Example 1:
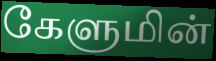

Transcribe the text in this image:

கேளுமின்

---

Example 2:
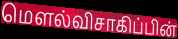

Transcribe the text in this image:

மௌல்விசாகிப்பின்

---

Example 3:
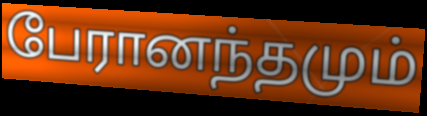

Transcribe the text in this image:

பேரானந்தமும்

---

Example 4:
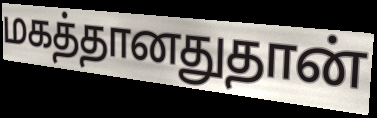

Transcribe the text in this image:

மகத்தானதுதான்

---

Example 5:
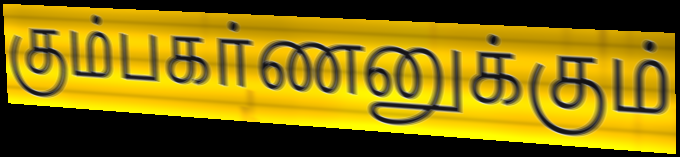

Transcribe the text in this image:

கும்பகர்ணனுக்கும்